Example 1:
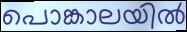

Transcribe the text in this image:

പൊങ്കാലയിൽ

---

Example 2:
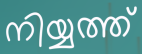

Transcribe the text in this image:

നിയ്യത്ത്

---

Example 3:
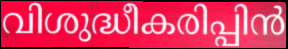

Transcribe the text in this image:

വിശുദ്ധീകരിപ്പിൻ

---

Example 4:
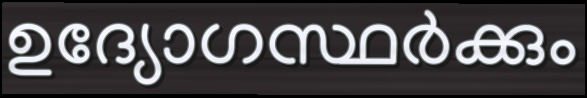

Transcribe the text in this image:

ഉദ്യോഗസ്ഥർക്കും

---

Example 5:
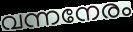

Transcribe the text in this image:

വന്നനേരം